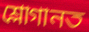
শ্লোগানত